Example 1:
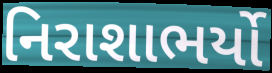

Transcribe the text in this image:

નિરાશાભર્યો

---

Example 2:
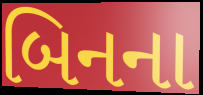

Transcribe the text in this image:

બિનના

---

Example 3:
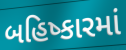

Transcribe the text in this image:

બહિષ્કારમાં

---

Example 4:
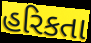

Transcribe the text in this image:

હરિકતા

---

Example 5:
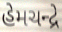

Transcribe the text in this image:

હેમચન્દ્રે